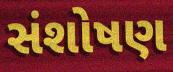
સંશોષણ